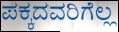
ಪಕ್ಕದವರಿಗೆಲ್ಲ